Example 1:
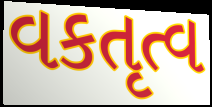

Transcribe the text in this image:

વકતૃત્વ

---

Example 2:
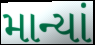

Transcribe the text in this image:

માન્યાં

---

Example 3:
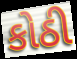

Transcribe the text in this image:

કોઠી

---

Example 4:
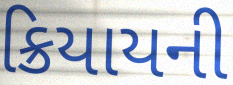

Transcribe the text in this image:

ક્રિયાયની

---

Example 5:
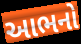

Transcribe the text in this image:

આભનો